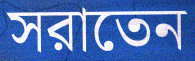
সরাতেন